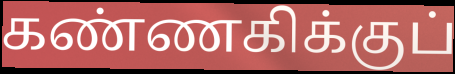
கண்ணகிக்குப்